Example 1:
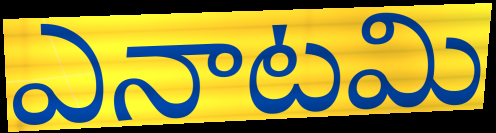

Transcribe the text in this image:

ఎనాటమి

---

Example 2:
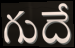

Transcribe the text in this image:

గుదే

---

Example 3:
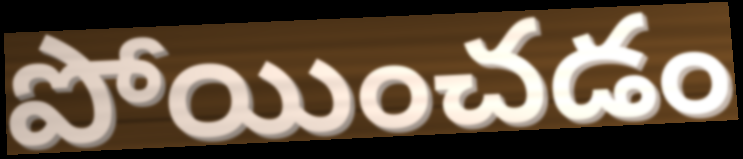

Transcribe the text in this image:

పోయించడం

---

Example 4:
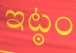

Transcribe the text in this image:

ఇట్ఠం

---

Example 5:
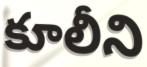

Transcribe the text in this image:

కూలీని